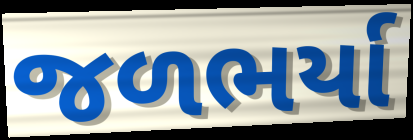
જળભર્યા